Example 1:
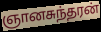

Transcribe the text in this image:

ஞானசுந்தரன்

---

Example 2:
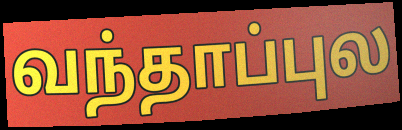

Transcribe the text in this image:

வந்தாப்புல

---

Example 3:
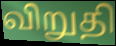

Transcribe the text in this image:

விறுதி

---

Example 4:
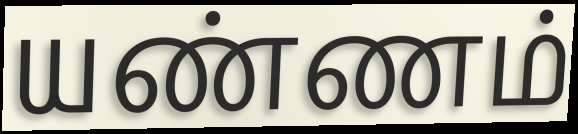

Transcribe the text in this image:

யண்ணம்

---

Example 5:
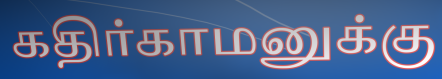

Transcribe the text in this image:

கதிர்காமனுக்கு